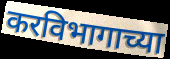
करविभागाच्या